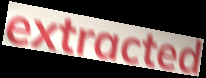
extracted